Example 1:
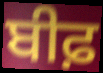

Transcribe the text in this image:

ਬੀਫ਼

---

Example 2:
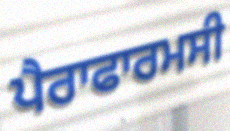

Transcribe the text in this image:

ਪੈਰਾਫਾਰਮਸੀ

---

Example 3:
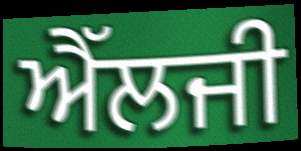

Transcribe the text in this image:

ਐੱਲਜੀ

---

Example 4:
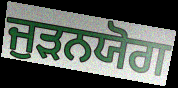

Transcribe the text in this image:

ਜੁੜਨਯੋਗ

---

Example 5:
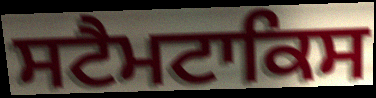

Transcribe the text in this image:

ਸਟੈਮਟਾਕਿਸ